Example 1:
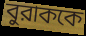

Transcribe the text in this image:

বুরাককে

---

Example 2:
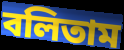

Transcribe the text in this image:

বলিতাম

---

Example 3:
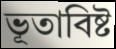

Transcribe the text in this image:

ভূতাবিষ্ট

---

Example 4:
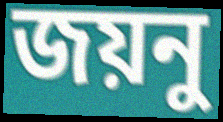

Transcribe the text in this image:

জয়নু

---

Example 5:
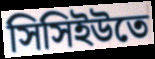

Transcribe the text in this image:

সিসিইউতে